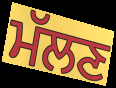
ਮੱਲਣ